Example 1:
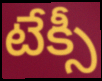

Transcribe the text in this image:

టేక్సీ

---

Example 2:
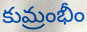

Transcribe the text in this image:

కుమ్రంభీం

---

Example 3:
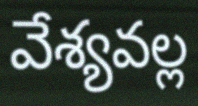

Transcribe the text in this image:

వేశ్యవల్ల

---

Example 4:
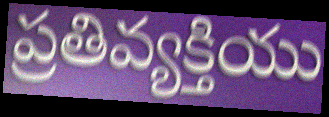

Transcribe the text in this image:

ప్రతివ్యక్తియు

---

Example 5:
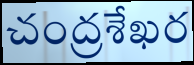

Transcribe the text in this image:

చంద్రశేఖర